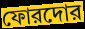
ফোরদোর